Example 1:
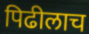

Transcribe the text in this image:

पिढीलाच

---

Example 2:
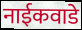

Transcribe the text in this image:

नाईकवाडे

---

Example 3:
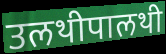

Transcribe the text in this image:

उलथीपालथी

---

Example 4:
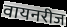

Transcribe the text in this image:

वायनरीज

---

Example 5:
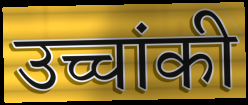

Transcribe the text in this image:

उच्चांकी